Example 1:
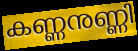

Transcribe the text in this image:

കണ്ണനുണ്ണി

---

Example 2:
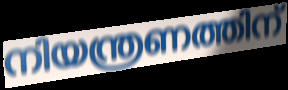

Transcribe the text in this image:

നിയന്ത്രണത്തിന്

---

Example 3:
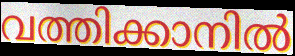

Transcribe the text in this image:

വത്തിക്കാനിൽ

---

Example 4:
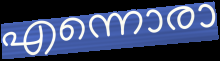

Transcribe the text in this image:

എന്നൊരാ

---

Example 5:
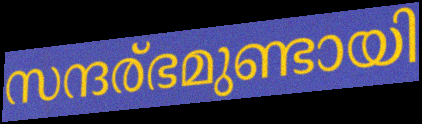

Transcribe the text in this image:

സന്ദര്ഭമുണ്ടായി